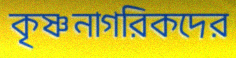
কৃষ্ণনাগরিকদের